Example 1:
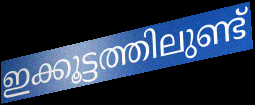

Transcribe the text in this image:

ഇക്കൂട്ടത്തിലുണ്ട്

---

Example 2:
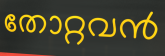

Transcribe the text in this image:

തോറ്റവൻ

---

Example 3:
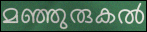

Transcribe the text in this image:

മഞ്ഞുരുകൽ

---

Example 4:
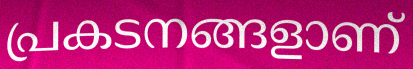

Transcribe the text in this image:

പ്രകടനങ്ങളാണ്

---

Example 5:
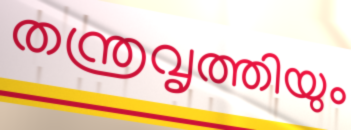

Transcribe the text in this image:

തന്ത്രവൃത്തിയും